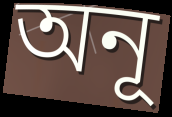
অনূ